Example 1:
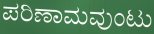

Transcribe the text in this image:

ಪರಿಣಾಮವುಂಟು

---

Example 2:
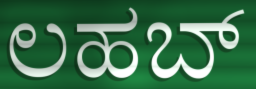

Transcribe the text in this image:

ಲಹಬ್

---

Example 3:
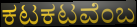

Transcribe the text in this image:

ಕಟಕಟವೆಂಬ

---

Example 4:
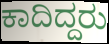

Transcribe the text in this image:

ಕಾದಿದ್ದರು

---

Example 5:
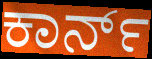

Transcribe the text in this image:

ಕಾರ್ನ್